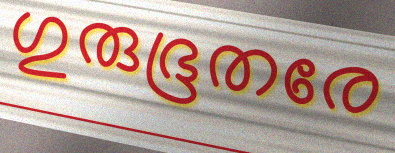
ഗുരുഭൂതരേ